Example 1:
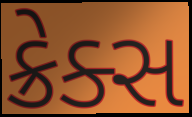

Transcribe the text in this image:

ક્રેક્સ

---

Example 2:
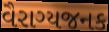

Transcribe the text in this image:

વૈરાગ્યજનક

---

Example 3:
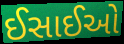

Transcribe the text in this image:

ઈસાઈઓ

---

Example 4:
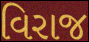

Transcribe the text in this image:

વિરાજ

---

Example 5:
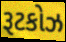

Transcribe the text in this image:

રૂટકોઝ